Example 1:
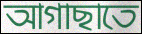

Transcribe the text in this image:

আগাছাতে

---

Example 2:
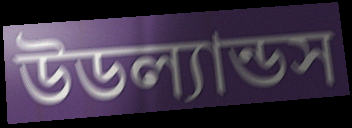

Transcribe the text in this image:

উডল্যান্ডস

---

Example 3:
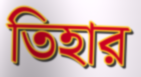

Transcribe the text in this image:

তিহার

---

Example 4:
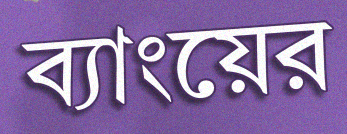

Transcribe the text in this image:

ব্যাংয়ের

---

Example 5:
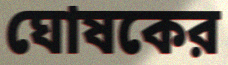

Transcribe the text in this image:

ঘোষকের